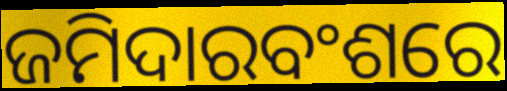
ଜମିଦାରବଂଶରେ